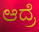
ಆದ್ರೆ